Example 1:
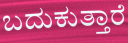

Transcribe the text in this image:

ಬದುಕುತ್ತಾರೆ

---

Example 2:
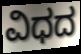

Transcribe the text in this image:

ವಿಧದ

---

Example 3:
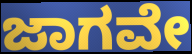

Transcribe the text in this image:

ಜಾಗವೇ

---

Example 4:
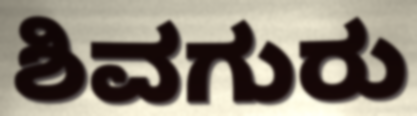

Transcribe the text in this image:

ಶಿವಗುರು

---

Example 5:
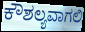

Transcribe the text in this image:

ಕೌಶಲ್ಯವಾಗಲಿ